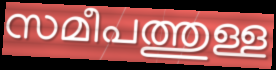
സമീപത്തുള്ള